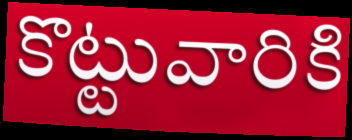
కొట్టువారికి